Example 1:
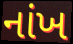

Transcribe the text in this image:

નાંખ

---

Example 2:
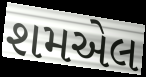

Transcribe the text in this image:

શમએલ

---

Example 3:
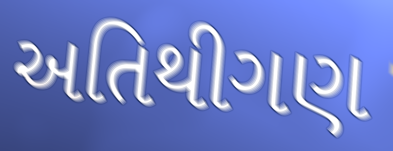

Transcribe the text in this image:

અતિથીગણ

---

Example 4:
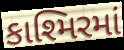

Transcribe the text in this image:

કાશ્મિરમાં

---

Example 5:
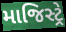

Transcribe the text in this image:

માજિસ્ટ્રે